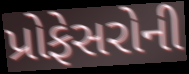
પ્રોફેસરોની